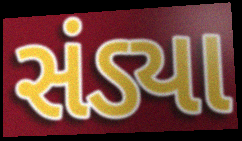
સંડ્યા